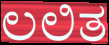
ಲಲಿತ